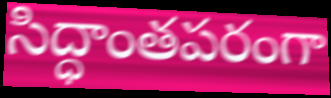
సిద్ధాంతపరంగా